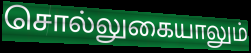
சொல்லுகையாலும்